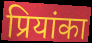
प्रियांका